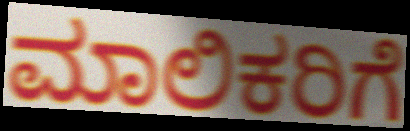
ಮಾಲಿಕರಿಗೆ